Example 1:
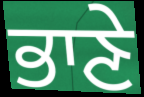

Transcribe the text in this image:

ਭਾਣੇ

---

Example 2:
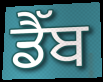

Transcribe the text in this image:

ਡੈੱਬ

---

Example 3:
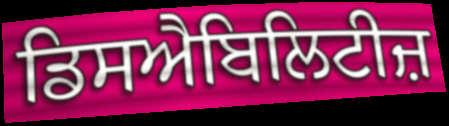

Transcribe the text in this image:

ਡਿਸਐਬਿਲਿਟੀਜ਼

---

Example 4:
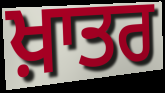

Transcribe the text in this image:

ਖ਼ਾਤਰ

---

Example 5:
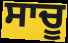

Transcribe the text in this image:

ਸਾਚੂ